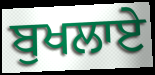
ਬੁਖਲਾਏ